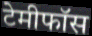
टेमीफॉस